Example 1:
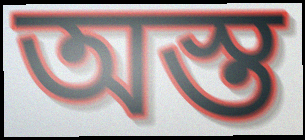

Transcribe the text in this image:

অস্ত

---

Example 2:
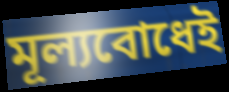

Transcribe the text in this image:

মূল্যবোধেই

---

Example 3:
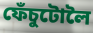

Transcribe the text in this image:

ফেঁচুটোলৈ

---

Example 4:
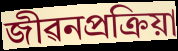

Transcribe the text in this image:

জীৱনপ্ৰক্ৰিয়া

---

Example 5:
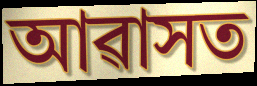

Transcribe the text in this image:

আৱাসত